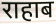
राहाब